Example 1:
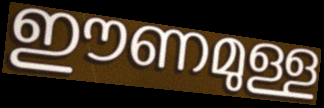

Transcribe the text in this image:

ഈണമുള്ള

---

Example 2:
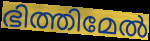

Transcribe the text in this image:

ഭിത്തിമേൽ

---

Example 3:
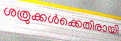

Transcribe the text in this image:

ശത്രുക്കൾക്കെതിരായി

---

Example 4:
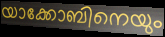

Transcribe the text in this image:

യാക്കോബിനെയും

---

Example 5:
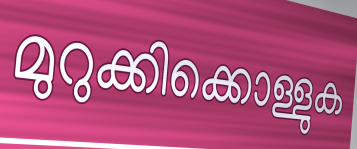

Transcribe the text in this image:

മുറുക്കിക്കൊള്ളുക